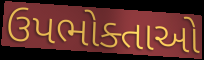
ઉપભોક્તાઓ